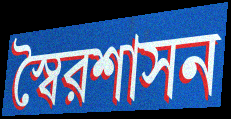
স্বৈরশাসন